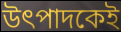
উৎপাদকেই